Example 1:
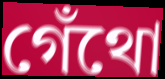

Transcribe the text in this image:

গেঁথো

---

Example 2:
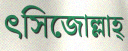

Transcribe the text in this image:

ৎসিজোল্লাহ্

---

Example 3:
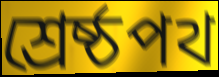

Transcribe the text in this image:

শ্রেষ্ঠপথ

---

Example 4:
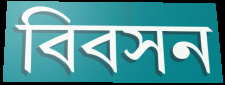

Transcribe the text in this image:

বিবসন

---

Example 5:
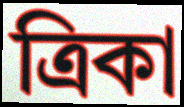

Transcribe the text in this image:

ত্রিকা